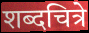
शब्दचित्रे